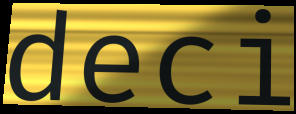
deci